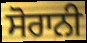
ਸੋਰਾਨੀ